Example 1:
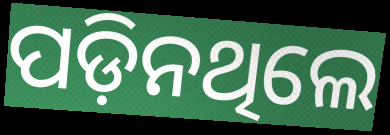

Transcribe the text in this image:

ପଡ଼ିନଥିଲେ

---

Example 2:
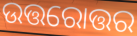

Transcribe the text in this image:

ଉତ୍ତରୋତ୍ତର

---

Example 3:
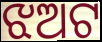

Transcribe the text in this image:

ଝଅଟ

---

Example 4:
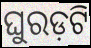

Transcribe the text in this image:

ଘୁରଡ଼ଟି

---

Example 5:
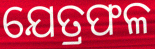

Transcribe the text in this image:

ଯେତ୍ରଫଳ